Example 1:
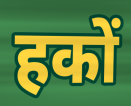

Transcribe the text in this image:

हकों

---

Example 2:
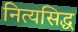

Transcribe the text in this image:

नित्यसिद्ध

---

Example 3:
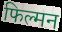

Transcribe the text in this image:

फिल्मन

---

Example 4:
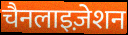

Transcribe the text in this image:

चैनलाइज़ेशन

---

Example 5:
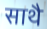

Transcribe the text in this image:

साथै